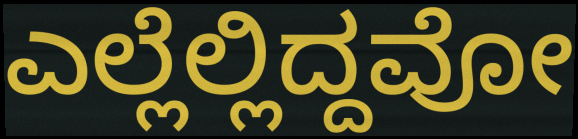
ಎಲ್ಲೆಲ್ಲಿದ್ದವೋ